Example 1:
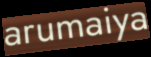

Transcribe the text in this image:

arumaiya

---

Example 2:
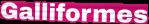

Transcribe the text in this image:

Galliformes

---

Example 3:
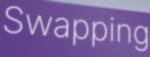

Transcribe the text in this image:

Swapping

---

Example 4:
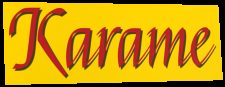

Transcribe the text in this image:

Karame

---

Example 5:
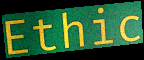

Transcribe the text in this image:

Ethic